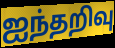
ஐந்தறிவு